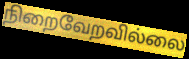
நிறைவேறவில்லை